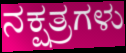
ನಕ್ಷತ್ರಗಳು